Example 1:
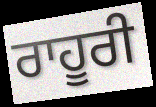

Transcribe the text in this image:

ਰਾਹੂਰੀ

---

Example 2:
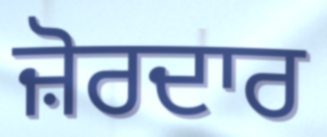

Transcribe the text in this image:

ਜ਼ੋਰਦਾਰ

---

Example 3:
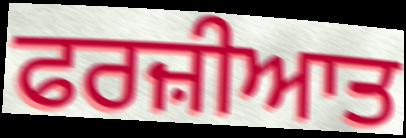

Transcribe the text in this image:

ਫਰਜ਼ੀਆਤ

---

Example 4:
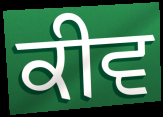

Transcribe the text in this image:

ਕੀਵ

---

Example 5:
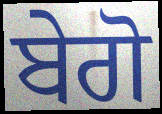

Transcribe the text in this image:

ਬੇਗੋ